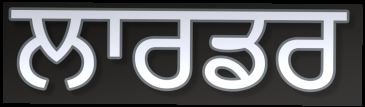
ਲਾਰਡਰ